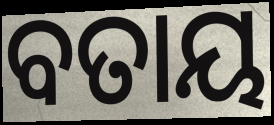
ବତାୟ